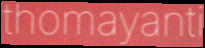
thomayanti